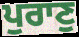
ਪੁਰਾਣੁ